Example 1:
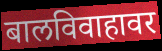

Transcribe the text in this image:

बालविवाहावर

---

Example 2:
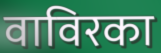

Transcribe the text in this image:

वाविरका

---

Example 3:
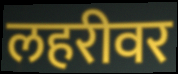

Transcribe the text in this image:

लहरीवर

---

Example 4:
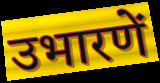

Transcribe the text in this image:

उभारणें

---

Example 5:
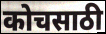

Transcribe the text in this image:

कोचसाठी